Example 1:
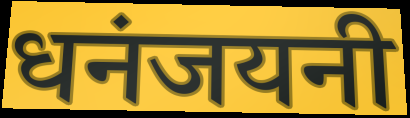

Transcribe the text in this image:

धनंजयनी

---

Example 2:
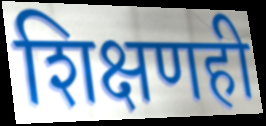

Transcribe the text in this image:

शिक्षणही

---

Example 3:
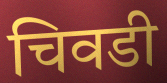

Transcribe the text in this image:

चिवडी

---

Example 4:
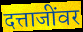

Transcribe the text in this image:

दत्ताजींवर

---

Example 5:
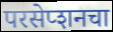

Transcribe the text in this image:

परसेप्शनचा